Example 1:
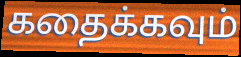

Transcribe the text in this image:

கதைக்கவும்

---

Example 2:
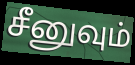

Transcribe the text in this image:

சீனுவும்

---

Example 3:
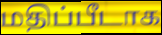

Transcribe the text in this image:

மதிப்பீடாக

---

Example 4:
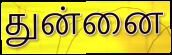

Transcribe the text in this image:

துன்னை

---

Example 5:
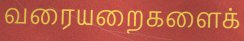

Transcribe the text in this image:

வரையறைகளைக்